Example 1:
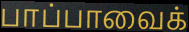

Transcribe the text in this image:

பாப்பாவைக்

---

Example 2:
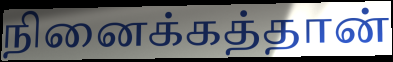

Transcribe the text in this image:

நினைக்கத்தான்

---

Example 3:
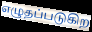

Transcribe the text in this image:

எழுதப்படுகிற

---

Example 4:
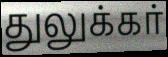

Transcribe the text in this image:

துலுக்கர்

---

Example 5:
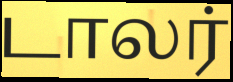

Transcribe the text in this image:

டாலர்